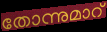
തോന്നുമാറ്